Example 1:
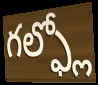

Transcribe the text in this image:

గల్ఫ్లో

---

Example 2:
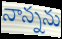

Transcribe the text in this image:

నాన్నను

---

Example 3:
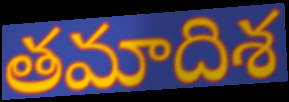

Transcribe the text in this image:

తమాదిశ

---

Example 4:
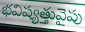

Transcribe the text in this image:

భవిష్యత్తువైపు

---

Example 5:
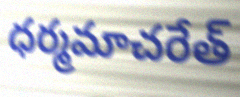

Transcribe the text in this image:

ధర్మమాచరేత్